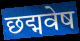
छद्मवेष